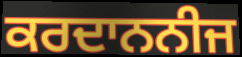
ਕਰਦਾਨਨੀਜ